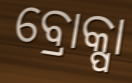
ବ୍ରୋକ୍ପା